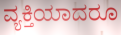
ವ್ಯಕ್ತಿಯಾದರೂ